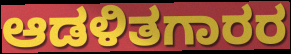
ಆಡಳಿತಗಾರರ